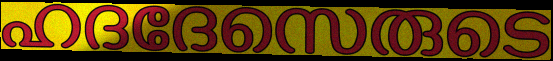
ഹദദേസെരുടെ